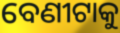
ବେଣୀଟାକୁ